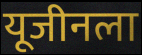
यूजीनला